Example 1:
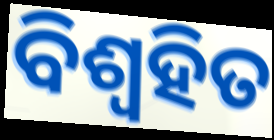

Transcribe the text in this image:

ବିଶ୍ଵହିତ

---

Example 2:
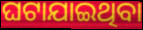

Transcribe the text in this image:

ଘଟାଯାଇଥିବା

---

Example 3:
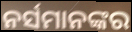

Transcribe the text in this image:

ନର୍ସମାନଙ୍କର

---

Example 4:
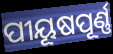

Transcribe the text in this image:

ପୀୟୂଷପୂର୍ଣ୍ଣ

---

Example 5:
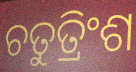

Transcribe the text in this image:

ଚତୁତ୍ରିଂଶ